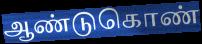
ஆண்டுகொண்